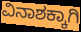
ವಿನಾಶಕ್ಕಾಗಿ